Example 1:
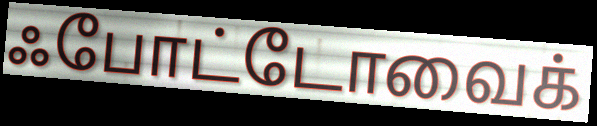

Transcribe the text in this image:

ஃபோட்டோவைக்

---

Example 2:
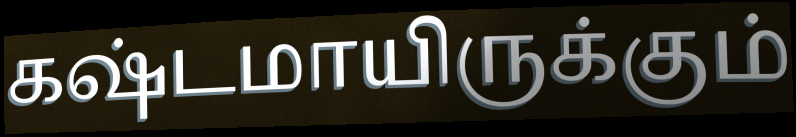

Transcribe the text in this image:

கஷ்டமாயிருக்கும்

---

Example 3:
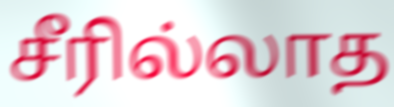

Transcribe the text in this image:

சீரில்லாத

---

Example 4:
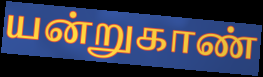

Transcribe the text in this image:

யன்றுகாண்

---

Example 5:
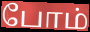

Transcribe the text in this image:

போம்